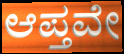
ಆಪ್ತವೇ